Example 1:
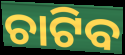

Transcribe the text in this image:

ଚାଟିବ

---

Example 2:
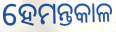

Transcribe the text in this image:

ହେମନ୍ତକାଳ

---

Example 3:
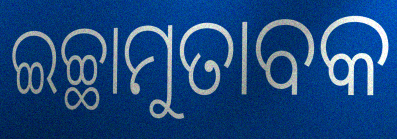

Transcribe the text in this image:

ଇଚ୍ଛାମୁତାବକ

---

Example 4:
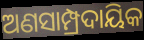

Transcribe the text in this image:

ଅଣସାମ୍ପ୍ରଦାୟିକ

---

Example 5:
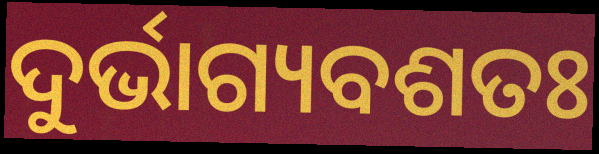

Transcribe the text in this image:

ଦୁର୍ଭାଗ୍ୟବଶତଃ